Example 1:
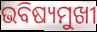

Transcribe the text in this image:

ଭବିଷ୍ୟମୁଖୀ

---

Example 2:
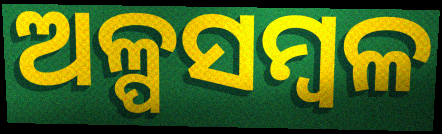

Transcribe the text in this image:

ଅଳ୍ପସମ୍ବଳ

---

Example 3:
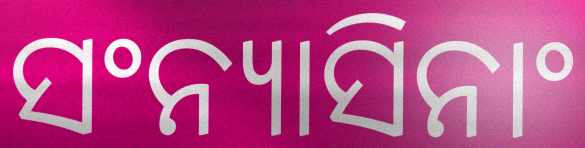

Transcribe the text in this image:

ସଂନ୍ୟାସିନାଂ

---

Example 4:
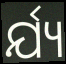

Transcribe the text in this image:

ର୍ଯ୍ୟ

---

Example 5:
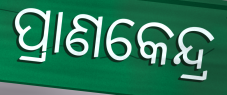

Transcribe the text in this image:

ପ୍ରାଣକେନ୍ଦ୍ର